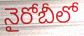
నైరోబీలో